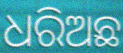
ଧରିଅଛ